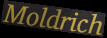
Moldrich